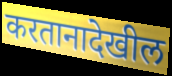
करतानादेखील